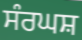
ਸੰਰਘਸ਼